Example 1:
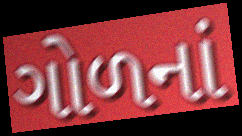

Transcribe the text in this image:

ગોળનાં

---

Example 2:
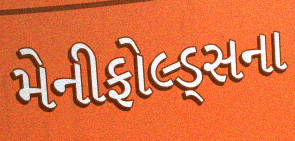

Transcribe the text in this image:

મેનીફોલ્ડ્સના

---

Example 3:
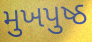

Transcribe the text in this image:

મુખપુષ્ઠ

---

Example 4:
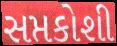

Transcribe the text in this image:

સપ્તકોશી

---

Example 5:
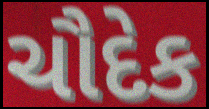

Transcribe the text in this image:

ચૌદેક